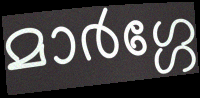
മാർഗ്ഗേ